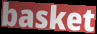
basket